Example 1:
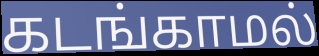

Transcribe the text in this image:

கடங்காமல்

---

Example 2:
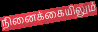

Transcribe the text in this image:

நினைக்கையிலும்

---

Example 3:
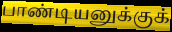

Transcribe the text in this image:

பாண்டியனுக்குக்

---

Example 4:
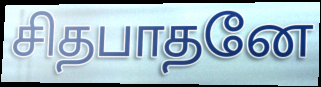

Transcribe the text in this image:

சிதபாதனே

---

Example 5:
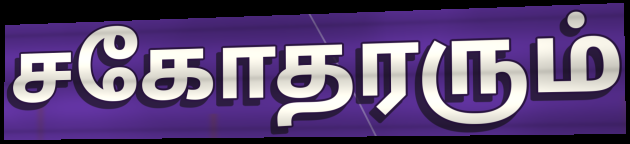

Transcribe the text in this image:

சகோதரரும்